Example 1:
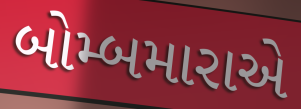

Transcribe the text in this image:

બોમ્બમારાએ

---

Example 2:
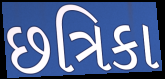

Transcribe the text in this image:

છત્રિકા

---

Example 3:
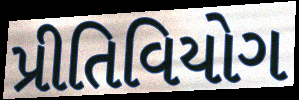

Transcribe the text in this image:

પ્રીતિવિયોગ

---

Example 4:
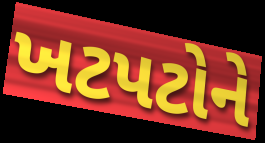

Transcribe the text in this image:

ખટપટોને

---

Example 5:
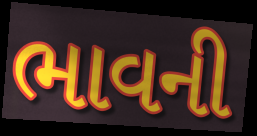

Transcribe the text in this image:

ભાવની